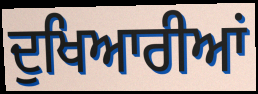
ਦੁਖਿਆਰੀਆਂ